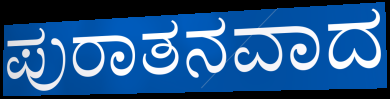
ಪುರಾತನವಾದ